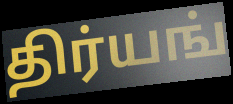
திர்யங்